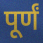
पूर्णं